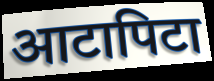
आटापिटा